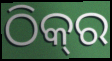
ଠିକ୍‍ର